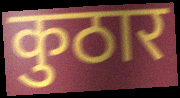
कुठार